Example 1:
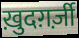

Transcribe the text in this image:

ख़ुदग़र्ज़ी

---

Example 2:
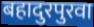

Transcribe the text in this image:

बहादुरपुरवा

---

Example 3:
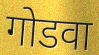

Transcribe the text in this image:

गोडवा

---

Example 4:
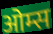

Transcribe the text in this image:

ओम्स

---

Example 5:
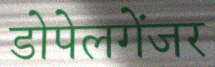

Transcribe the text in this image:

डोपेलगेंजर